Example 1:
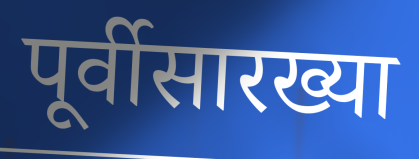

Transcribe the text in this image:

पूर्वीसारख्या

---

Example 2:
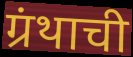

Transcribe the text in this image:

ग्रंथाची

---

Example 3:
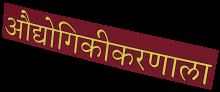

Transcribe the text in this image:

औद्योगिकीकरणाला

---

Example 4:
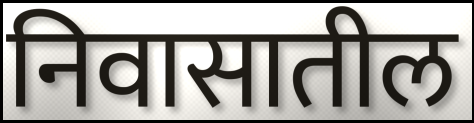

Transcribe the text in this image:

निवासातील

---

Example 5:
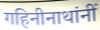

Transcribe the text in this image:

गहिनीनाथांनीं